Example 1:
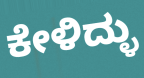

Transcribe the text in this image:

ಕೇಳಿದ್ಳು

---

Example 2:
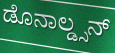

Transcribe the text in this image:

ಡೊನಾಲ್ಡ್ಸನ್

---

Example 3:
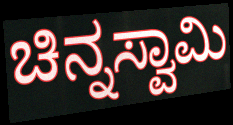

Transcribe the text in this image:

ಚಿನ್ನಸ್ವಾಮಿ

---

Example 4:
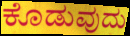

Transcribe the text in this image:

ಕೊಡುವುದು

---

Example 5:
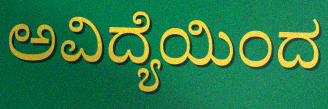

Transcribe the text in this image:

ಅವಿದ್ಯೆಯಿಂದ